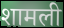
शामली